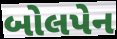
બોલપેન